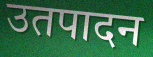
उतपादन